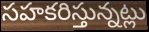
సహకరిస్తున్నట్లు